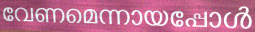
വേണമെന്നായപ്പോൾ